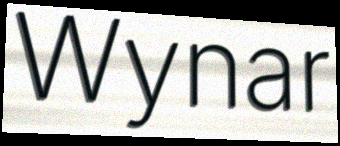
Wynar